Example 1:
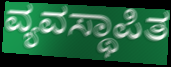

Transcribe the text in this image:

ವ್ಯವಸ್ಥಾಪಿತ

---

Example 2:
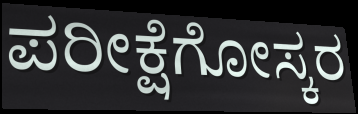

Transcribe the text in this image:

ಪರೀಕ್ಷೆಗೋಸ್ಕರ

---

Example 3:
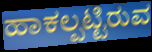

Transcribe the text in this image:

ಹಾಕಲ್ಪಟ್ಟಿರುವ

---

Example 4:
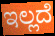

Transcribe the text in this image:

ಇಲ್ಲದೆ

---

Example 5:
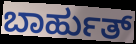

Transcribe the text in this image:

ಬಾರ್ಹುತ್